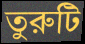
তুরুটি